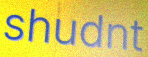
shudnt